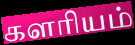
களரியம்